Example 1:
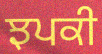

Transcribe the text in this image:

ਝਪਕੀ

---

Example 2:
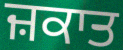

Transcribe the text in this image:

ਜ਼ਕਾਤ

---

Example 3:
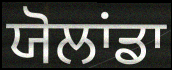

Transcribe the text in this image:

ਯੋਲਾਂਡਾ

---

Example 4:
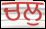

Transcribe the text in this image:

ਚਲੁ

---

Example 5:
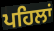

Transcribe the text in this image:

ਪਹਿਲਾਂ